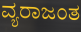
ವ್ಯರಾಜಂತ